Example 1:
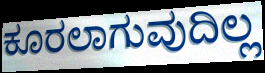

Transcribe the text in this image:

ಕೂರಲಾಗುವುದಿಲ್ಲ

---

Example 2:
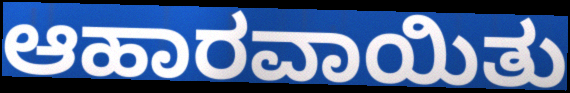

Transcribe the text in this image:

ಆಹಾರವಾಯಿತು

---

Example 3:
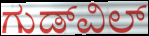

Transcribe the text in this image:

ಗುಡ್‌ವಿಲ್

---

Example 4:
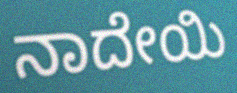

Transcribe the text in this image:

ನಾದೇಯಿ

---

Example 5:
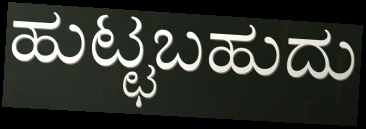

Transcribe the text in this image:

ಹುಟ್ಟಬಹುದು